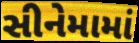
સીનેમામાં